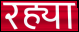
रह्या